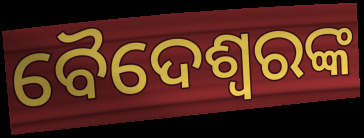
ବୈଦେଶ୍ୱରଙ୍କ